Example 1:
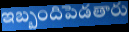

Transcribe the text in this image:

ఇబ్బందిపెడతారు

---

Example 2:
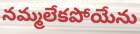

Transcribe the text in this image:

నమ్మలేకపోయేను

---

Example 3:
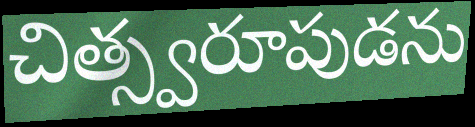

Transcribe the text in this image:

చిత్స్వరూపుడను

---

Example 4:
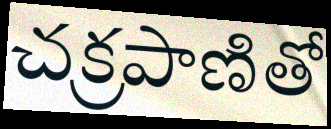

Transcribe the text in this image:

చక్రపాణితో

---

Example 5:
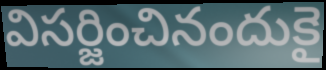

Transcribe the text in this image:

విసర్జించినందుకై